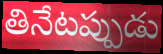
తినేటప్పుడు